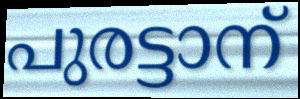
പുരട്ടാന്